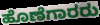
ಹೊಣೆಗಾರರು